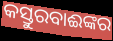
କସ୍ତୁରବାଈଙ୍କର